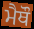
ਮੈਥੌ